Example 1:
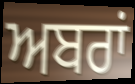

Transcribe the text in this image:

ਅਬਰਾਂ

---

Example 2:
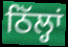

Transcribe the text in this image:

ਠਿੱਲ੍ਹਾਂ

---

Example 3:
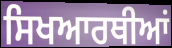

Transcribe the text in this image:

ਸਿਖਆਰਥੀਆਂ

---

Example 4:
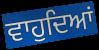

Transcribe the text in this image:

ਵਾਹੁਦਿਆਂ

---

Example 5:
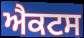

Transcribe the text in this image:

ਐਕਟਸ